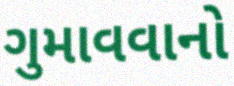
ગુમાવવાનો